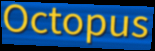
Octopus